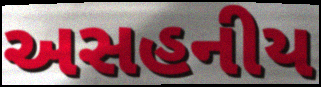
અસહનીય